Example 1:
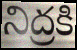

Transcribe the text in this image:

నిద్రకి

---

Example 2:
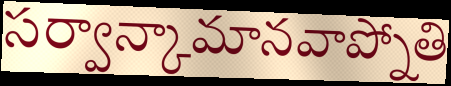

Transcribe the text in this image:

సర్వాన్కామానవాప్నోతి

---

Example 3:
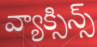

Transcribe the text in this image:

వ్యాక్సిన్స్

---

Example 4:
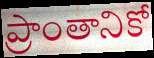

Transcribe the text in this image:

ప్రాంతానికో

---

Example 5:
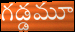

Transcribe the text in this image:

గడ్డమూ